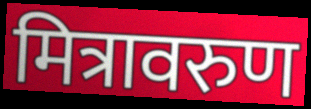
मित्रावरुण